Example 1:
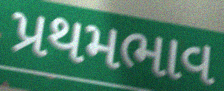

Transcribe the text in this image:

પ્રથમભાવ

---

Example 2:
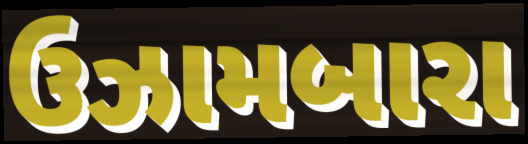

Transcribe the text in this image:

ઉઝામબારા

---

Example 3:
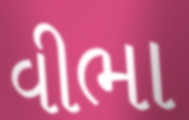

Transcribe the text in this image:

વીભા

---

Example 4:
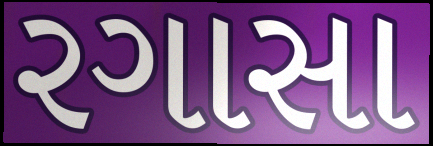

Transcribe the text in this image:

રગાસા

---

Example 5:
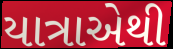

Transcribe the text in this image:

યાત્રાએથી